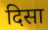
दिसा